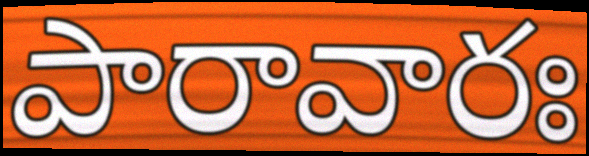
పారావారః